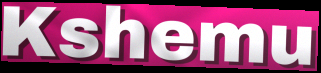
Kshemu